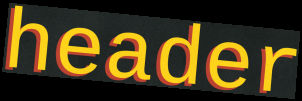
header